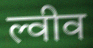
ल्वीव